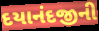
દયાનંદજીની